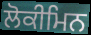
ਲੋਕੀਮਿਨ